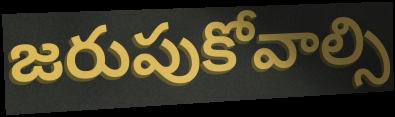
జరుపుకోవాల్సి